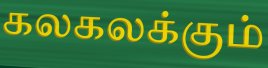
கலகலக்கும்